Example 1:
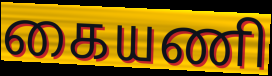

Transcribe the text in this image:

கையணி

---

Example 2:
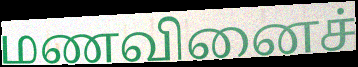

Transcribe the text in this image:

மணவினைச்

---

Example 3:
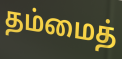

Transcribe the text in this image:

தம்மைத்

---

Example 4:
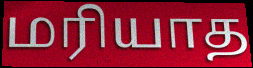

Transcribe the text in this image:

மரியாத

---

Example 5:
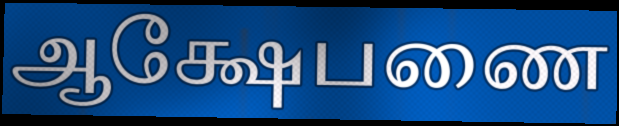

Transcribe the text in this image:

ஆக்ஷேபணை